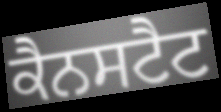
ਕੈਨਸਟੈਟ